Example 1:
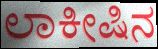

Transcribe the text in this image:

ಲಾಕೀಷಿನ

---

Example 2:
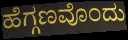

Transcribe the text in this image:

ಹೆಗ್ಗಣವೊಂದು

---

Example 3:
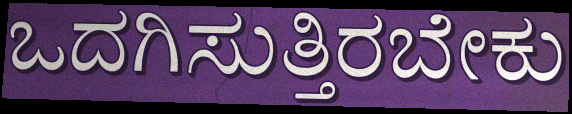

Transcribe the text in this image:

ಒದಗಿಸುತ್ತಿರಬೇಕು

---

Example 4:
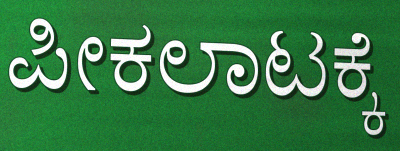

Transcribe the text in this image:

ಪೀಕಲಾಟಕ್ಕೆ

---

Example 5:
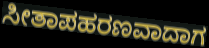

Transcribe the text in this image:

ಸೀತಾಪಹರಣವಾದಾಗ